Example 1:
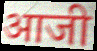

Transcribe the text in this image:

आजी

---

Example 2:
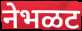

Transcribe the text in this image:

नेभळट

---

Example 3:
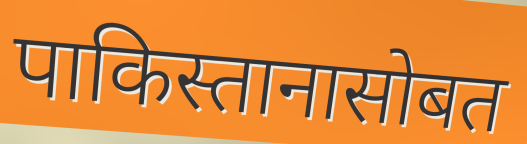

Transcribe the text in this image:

पाकिस्तानासोबत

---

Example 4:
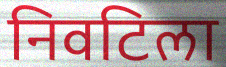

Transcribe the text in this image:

निवटिला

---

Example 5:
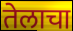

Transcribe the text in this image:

तेलाचा